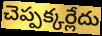
చెప్పక్కర్లేదు